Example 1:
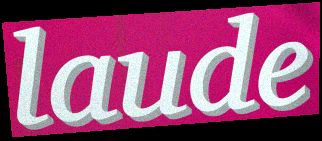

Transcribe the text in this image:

laude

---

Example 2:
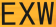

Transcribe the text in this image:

EXW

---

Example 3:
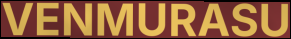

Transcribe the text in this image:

VENMURASU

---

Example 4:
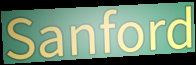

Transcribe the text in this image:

Sanford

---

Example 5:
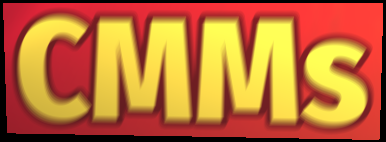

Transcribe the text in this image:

CMMs